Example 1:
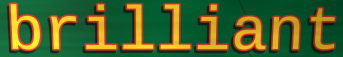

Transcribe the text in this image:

brilliant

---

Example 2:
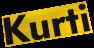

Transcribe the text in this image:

Kurti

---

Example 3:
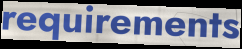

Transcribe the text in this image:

requirements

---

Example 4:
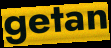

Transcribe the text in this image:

getan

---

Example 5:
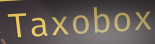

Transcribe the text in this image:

Taxobox